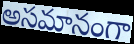
అసమానంగా